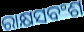
ରାକ୍ଷସବଂଶ